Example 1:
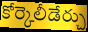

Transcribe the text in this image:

కోర్కెలీడేర్చు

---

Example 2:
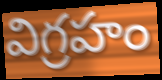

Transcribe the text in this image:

విగ్రహం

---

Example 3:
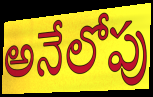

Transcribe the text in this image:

అనేలోపు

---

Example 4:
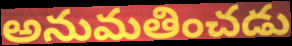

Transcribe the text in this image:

అనుమతించడు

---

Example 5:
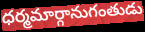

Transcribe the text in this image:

ధర్మమార్గానుగంతుడు